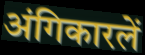
अंगिकारलें